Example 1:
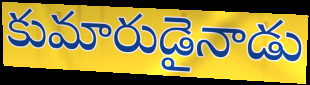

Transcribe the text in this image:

కుమారుడైనాడు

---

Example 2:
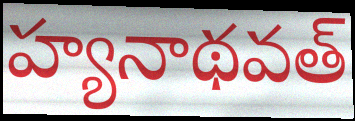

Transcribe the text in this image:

హ్యనాథవత్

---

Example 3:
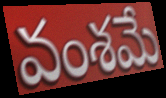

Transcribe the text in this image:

వంశమే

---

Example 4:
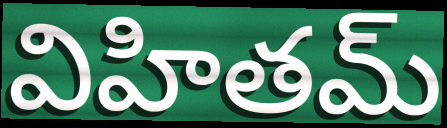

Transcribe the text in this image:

విహితమ్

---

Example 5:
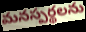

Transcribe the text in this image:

మనస్పర్థలను